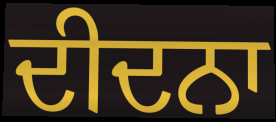
ਦੀਦਨਾ